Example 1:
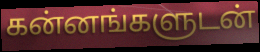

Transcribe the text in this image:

கன்னங்களுடன்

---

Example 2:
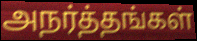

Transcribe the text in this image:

அநர்த்தங்கள்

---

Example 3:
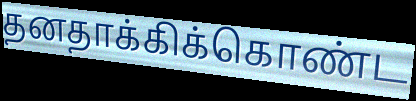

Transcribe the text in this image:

தனதாக்கிக்கொண்ட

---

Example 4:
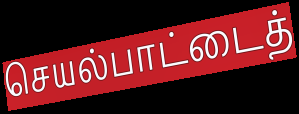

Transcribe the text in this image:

செயல்பாட்டைத்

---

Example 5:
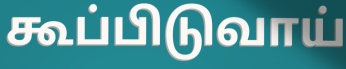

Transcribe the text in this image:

கூப்பிடுவாய்